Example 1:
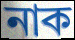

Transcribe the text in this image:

নাক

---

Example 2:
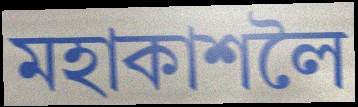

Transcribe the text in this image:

মহাকাশলৈ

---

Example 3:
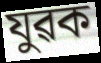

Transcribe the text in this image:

যুৱক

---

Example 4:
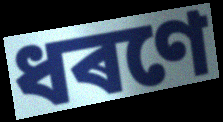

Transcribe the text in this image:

ধৰণে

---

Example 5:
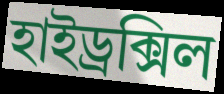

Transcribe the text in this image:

হাইড্ৰক্সিল